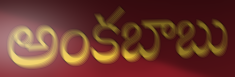
అంకబాబు